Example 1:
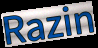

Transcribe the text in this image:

Razin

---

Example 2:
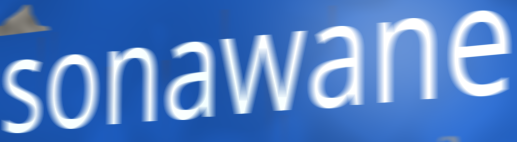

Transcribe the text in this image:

sonawane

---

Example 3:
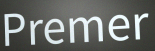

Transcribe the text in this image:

Premer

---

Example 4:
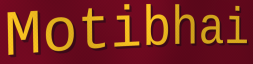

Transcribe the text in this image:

Motibhai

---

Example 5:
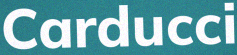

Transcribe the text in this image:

Carducci